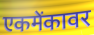
एकमेंकावर